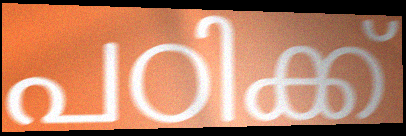
പഠിക്ക്